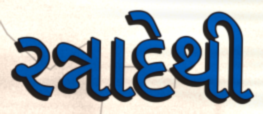
રન્નાદેથી